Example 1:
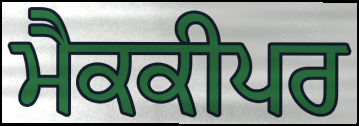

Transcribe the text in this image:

ਮੈਕਕੀਪਰ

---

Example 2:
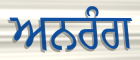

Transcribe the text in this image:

ਅਨਰੰਗ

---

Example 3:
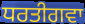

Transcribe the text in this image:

ਧਰਤੀਗਵਾ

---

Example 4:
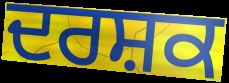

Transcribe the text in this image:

ਦਰਸ਼ਕ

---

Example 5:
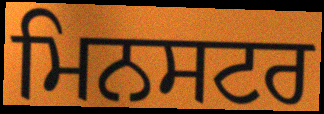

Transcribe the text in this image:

ਮਿਨਸਟਰ